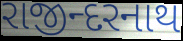
રાજીન્દરનાથ